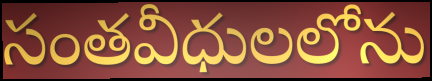
సంతవీధులలోను